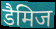
डैमिज